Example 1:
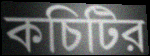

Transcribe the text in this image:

কচিটির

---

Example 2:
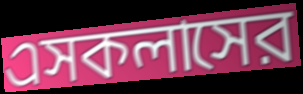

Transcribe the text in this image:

এসকলাসের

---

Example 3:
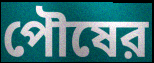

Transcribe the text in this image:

পৌষের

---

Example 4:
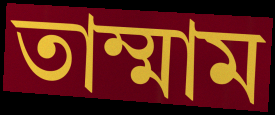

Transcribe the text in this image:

তাম্মাম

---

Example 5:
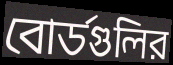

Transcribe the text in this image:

বোর্ডগুলির